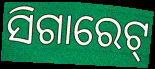
ସିଗାରେଟ୍